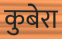
कुबेरा